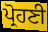
ਪ੍ਰੋਹਣੀ